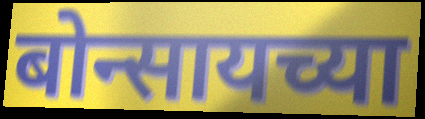
बोन्सायच्या